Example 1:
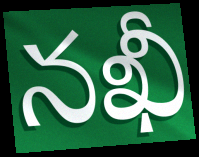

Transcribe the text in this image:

నఖీ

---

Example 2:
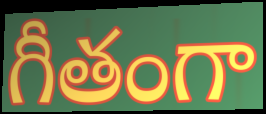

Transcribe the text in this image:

గీతంగా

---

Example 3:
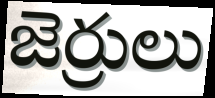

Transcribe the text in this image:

జెర్రులు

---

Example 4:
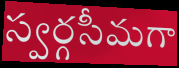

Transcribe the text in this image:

స్వర్గసీమగా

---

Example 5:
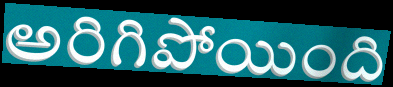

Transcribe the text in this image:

అరిగిపోయింది